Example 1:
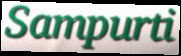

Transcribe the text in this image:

Sampurti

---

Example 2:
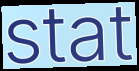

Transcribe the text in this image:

stat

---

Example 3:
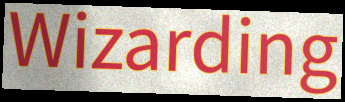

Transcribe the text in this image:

Wizarding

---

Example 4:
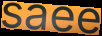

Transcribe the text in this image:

saee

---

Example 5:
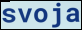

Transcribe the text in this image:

svoja